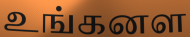
உங்கனள